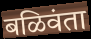
बळिवंता